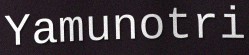
Yamunotri